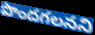
పొందగలనని